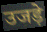
उजड़े